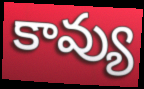
కావ్యు